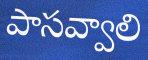
పాసవ్వాలి